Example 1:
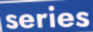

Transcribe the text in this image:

series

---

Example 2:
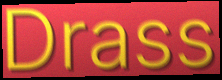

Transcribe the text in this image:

Drass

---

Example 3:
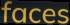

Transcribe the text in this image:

faces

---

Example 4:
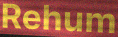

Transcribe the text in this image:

Rehum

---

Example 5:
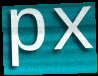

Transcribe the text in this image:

px